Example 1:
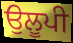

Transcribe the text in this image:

ਉਲੂਪੀ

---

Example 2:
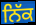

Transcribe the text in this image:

ਨਿੱਕ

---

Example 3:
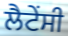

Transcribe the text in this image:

ਲੈਟੇਂਸੀ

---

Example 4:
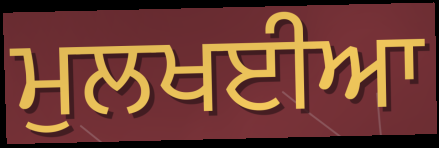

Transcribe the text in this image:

ਮੁਲਖਈਆ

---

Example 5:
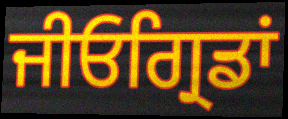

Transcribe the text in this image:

ਜੀਓਗ੍ਰਿਡਾਂ